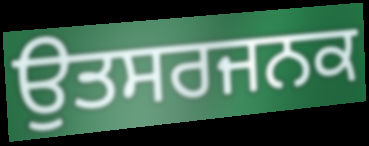
ਉਤਸਰਜਨਕ